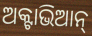
ଅକ୍ଟାଭିଆନ୍